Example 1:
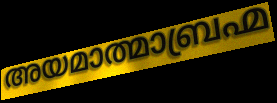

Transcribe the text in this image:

അയമാത്മാബ്രഹ്മ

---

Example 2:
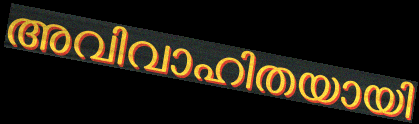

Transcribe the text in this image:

അവിവാഹിതയായി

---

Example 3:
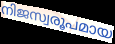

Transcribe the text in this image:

നിജസ്വരൂപമായ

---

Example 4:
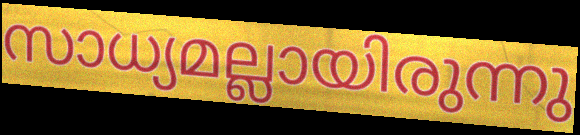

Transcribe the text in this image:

സാധ്യമല്ലായിരുന്നു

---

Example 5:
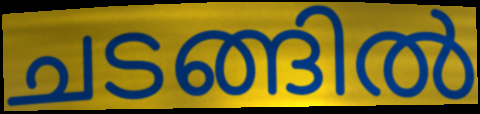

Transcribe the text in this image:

ചടങ്ങിൽ